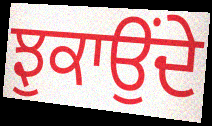
ਝੁਕਾਉਂਦੇ